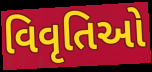
વિવૃતિઓ